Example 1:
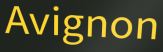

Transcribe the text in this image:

Avignon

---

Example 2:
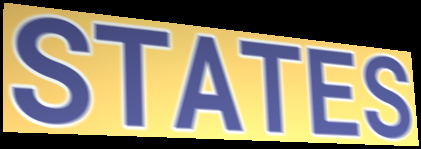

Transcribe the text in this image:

STATES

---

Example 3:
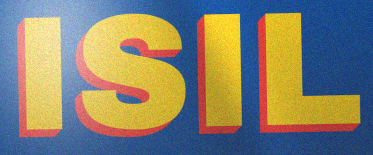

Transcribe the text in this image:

ISIL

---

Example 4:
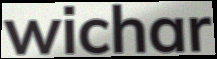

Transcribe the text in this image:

wichar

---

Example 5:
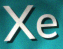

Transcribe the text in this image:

Xe